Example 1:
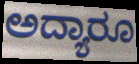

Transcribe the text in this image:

ಅದ್ಯಾರೂ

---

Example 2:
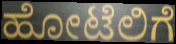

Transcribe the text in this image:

ಹೋಟೆಲಿಗೆ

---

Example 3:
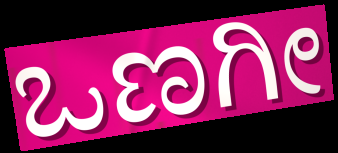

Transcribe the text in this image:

ಒಣಗೀ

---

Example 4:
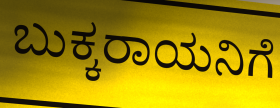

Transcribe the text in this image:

ಬುಕ್ಕರಾಯನಿಗೆ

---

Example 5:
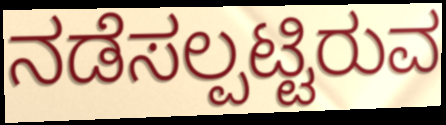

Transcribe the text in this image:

ನಡೆಸಲ್ಪಟ್ಟಿರುವ